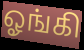
ஓங்கி